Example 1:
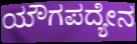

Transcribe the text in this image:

ಯೌಗಪದ್ಯೇನ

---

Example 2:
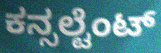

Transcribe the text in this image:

ಕನ್ಸಲ್ಟೆಂಟ್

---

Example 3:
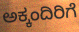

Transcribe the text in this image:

ಅಕ್ಕಂದಿರಿಗೆ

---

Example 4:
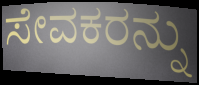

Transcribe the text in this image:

ಸೇವಕರನ್ನು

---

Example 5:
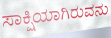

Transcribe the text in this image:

ಸಾಕ್ಷಿಯಾಗಿರುವನು